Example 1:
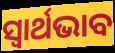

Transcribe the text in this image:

ସ୍ଵାର୍ଥଭାବ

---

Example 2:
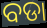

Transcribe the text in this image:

ବଡା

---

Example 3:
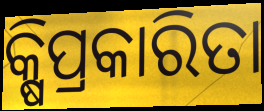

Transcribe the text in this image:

କ୍ଷିପ୍ରକାରିତା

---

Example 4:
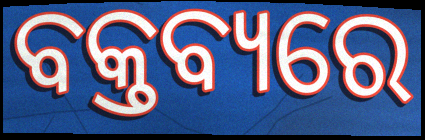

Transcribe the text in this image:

ବକ୍ତବ୍ୟରେ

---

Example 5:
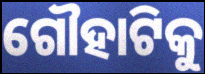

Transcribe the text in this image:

ଗୌହାଟିକୁ